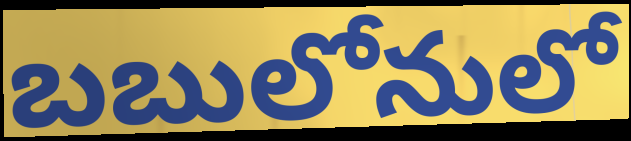
బబులోనులో